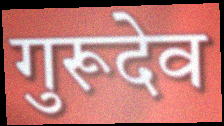
गुरूदेव